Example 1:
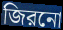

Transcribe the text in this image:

জিরনো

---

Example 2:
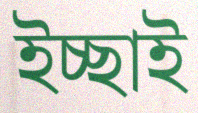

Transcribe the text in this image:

ইচ্ছাই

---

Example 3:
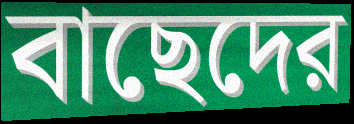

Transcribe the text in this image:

বাছেদের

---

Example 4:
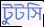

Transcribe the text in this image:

টুটসি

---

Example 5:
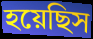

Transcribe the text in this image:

হয়েছিস